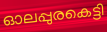
ഓലപ്പുരകെട്ടി